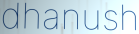
dhanush